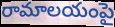
రామాలయంపై